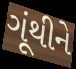
ગૂંથીને